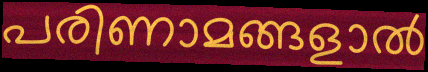
പരിണാമങ്ങളാൽ